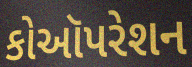
કોઑપરેશન